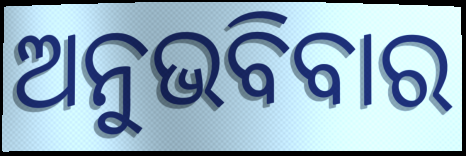
ଅନୁଭବିବାର